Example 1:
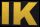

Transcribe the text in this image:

IK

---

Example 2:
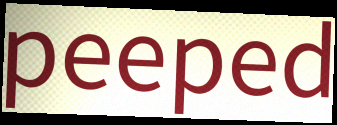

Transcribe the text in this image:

peeped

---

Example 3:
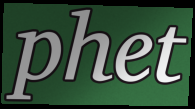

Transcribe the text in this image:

phet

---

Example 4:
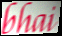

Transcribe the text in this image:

bhai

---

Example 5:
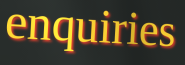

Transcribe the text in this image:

enquiries